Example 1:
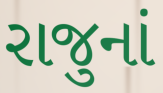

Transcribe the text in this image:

રાજુનાં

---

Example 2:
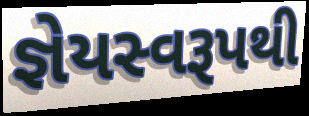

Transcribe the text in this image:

જ્ઞેયસ્વરૂપથી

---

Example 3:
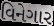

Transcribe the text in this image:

વિનેગાર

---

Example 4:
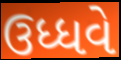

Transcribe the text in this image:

ઉધ્ધવે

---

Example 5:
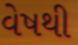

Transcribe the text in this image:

વેષથી